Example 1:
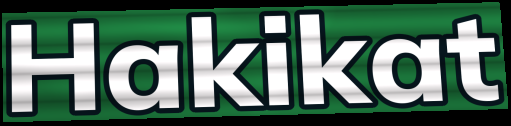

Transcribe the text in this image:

Hakikat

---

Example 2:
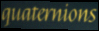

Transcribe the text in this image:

quaternions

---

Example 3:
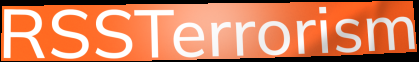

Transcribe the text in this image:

RSSTerrorism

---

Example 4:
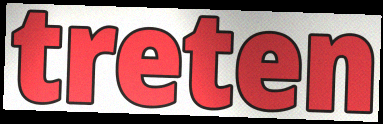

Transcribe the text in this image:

treten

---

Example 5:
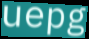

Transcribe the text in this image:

uepg